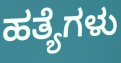
ಹತ್ಯೆಗಳು